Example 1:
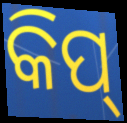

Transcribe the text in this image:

କିପ୍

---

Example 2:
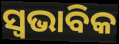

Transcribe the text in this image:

ସ୍ଵଭାବିକ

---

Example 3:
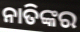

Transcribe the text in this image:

ନାତିଙ୍କର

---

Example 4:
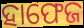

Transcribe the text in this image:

ହାଫେଜ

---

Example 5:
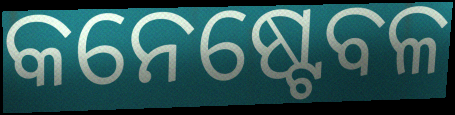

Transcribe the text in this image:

କନେଷ୍ଟେବଳ